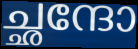
ച്ഛന്ദോ